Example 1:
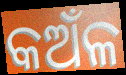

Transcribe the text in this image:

କଅଁଳ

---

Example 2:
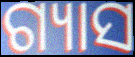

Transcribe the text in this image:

ଗ୍ୟାସ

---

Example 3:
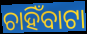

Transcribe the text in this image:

ଚାହିଁବାଟା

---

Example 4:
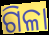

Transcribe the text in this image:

ଗିଳା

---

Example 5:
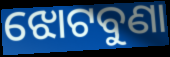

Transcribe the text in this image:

ଝୋଟବୁଣା